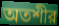
অতশীর